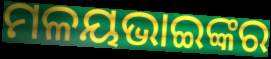
ମଳୟଭାଇଙ୍କର